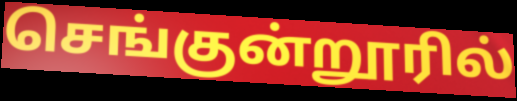
செங்குன்றூரில்